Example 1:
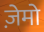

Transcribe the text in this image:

ज़ेमो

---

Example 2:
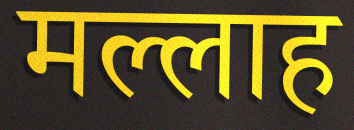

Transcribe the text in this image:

मल्लाह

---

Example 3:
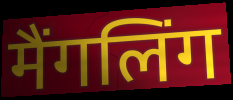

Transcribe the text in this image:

मैंगलिंग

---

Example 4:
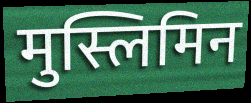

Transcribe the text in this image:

मुस्लिमिन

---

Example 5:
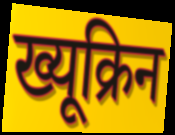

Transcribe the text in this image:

ख्यूक्रिन